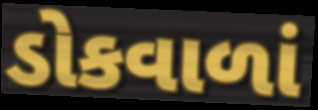
ડોકવાળાં